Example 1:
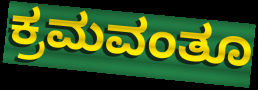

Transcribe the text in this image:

ಕ್ರಮವಂತೂ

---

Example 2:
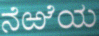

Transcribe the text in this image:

ನೆಱೆಯ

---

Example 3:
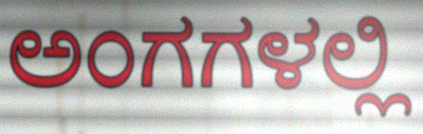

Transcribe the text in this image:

ಅಂಗಗಳಲ್ಲಿ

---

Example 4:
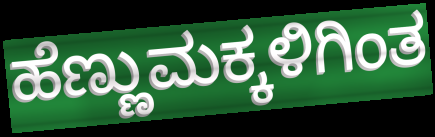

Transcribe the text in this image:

ಹೆಣ್ಣುಮಕ್ಕಳಿಗಿಂತ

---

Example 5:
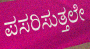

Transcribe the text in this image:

ಪಸರಿಸುತ್ತಲೇ